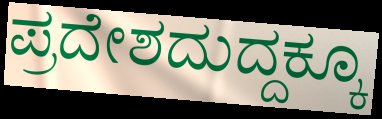
ಪ್ರದೇಶದುದ್ದಕ್ಕೂ